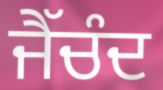
ਜੈੱਚੰਦ